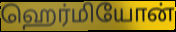
ஹெர்மியோன்